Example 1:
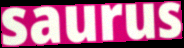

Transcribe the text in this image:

saurus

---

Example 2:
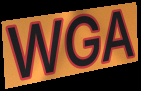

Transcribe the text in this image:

WGA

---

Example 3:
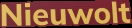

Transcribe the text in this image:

Nieuwolt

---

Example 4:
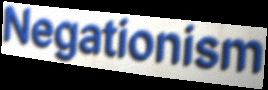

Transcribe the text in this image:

Negationism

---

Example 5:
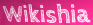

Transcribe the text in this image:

Wikishia